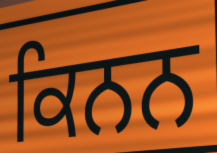
ਕਿਨਨ